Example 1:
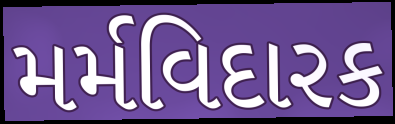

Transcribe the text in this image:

મર્મવિદારક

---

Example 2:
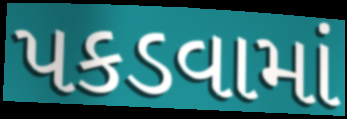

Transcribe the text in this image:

પકડવામાં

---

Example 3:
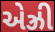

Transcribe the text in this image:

એઝ્રી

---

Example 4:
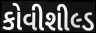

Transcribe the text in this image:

કોવીશીલ્ડ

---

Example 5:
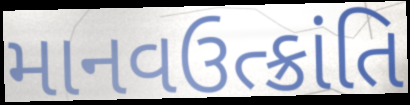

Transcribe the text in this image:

માનવઉત્ક્રાંતિ